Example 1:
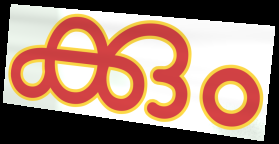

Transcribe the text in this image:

ക്കും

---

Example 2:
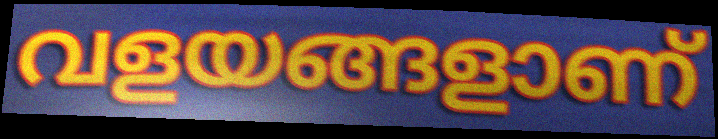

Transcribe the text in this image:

വളയങ്ങളാണ്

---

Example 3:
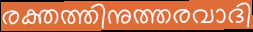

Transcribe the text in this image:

രക്തത്തിനുത്തരവാദി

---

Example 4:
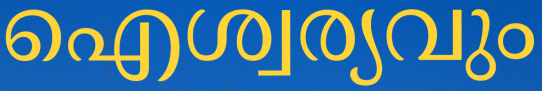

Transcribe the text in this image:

ഐശ്വര്യവും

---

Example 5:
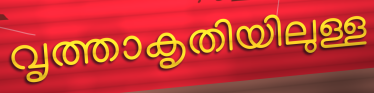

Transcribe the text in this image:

വൃത്താകൃതിയിലുള്ള